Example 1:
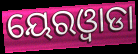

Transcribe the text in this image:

ୟେରଓ୍ୱାଡା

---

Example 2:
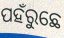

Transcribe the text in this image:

ପହଁରୁଛେ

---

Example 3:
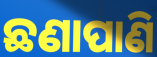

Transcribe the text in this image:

ଛଣାପାଣି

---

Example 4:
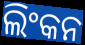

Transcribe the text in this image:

ଲିଂକନ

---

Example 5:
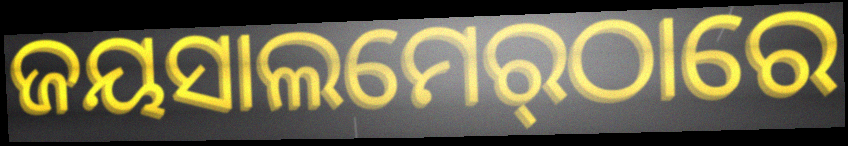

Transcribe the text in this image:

ଜୟସାଲମେର୍‌ଠାରେ